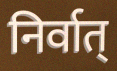
निर्वात्